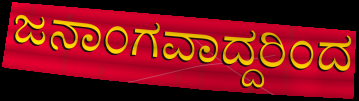
ಜನಾಂಗವಾದ್ದರಿಂದ